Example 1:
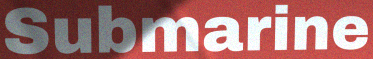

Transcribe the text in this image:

Submarine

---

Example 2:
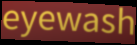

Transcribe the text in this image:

eyewash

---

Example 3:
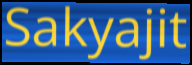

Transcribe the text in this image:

Sakyajit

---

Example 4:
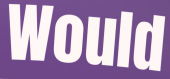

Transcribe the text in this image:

Would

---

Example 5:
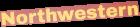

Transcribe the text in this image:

Northwestern